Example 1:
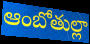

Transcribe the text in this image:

ఆంబోతుల్లా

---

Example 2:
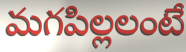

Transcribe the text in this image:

మగపిల్లలంటే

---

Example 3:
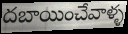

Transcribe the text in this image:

దబాయించేవాళ్ళ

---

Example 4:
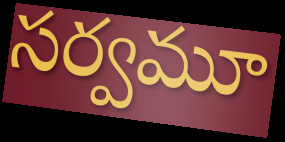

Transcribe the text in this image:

సర్వమూ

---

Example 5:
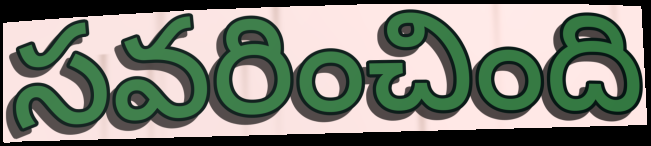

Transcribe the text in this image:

సవరించింది